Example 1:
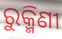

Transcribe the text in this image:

ରୁକ୍ମିଣୀ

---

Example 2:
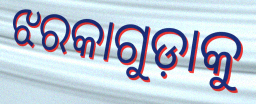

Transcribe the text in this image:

ଝରକାଗୁଡ଼ାକୁ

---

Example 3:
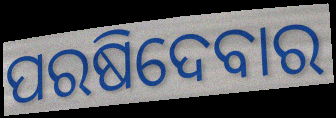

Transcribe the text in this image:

ପରଷିଦେବାର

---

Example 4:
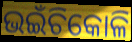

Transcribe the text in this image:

ଭଇଁଚିକୋଳି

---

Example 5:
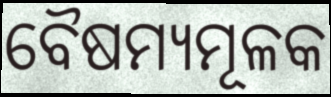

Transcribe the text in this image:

ବୈଷମ୍ୟମୂଳକ